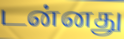
டன்னது